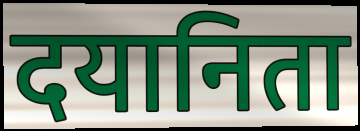
दयानिता